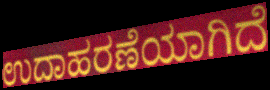
ಉದಾಹರಣೆಯಾಗಿದೆ